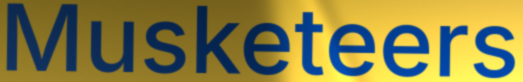
Musketeers